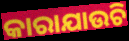
କାରାଯାଉଚି